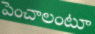
పెంచాలంటూ